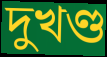
দুখণ্ড